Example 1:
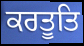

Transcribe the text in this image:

ਕਰਤੂਤਿ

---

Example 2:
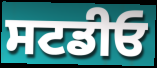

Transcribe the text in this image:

ਸਟਡੀਓ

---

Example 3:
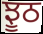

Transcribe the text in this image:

ਝੂਠ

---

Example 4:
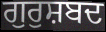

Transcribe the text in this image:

ਗੁਰੁਸ਼ਬਦ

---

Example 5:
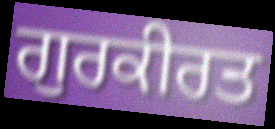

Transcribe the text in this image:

ਗੁਰਕੀਰਤ